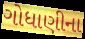
ગોધાણીના